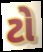
ટો